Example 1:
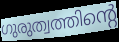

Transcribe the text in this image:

ഗുരുത്വത്തിന്റെ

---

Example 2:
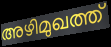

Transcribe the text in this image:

അഴിമുഖത്ത്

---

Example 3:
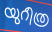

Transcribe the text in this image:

യുറീത്ര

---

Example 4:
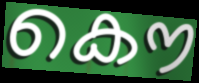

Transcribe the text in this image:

കൌ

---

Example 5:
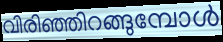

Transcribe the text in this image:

വിരിഞ്ഞിറങ്ങുമ്പോൾ